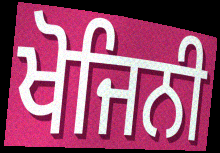
ਖੋਜਿਨੀ